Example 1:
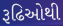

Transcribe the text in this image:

રૂઢિઓથી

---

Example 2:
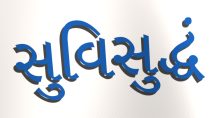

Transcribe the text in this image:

સુવિસુદ્ધં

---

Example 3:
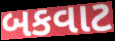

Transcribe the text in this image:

બકવાટ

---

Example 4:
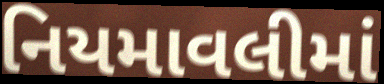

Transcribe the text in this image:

નિયમાવલીમાં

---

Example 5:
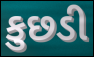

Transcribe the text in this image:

કુછડી